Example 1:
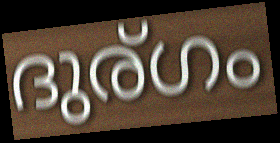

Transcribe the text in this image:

ദുര്ഗം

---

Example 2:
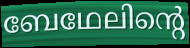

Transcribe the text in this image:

ബേഥേലിന്റെ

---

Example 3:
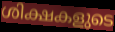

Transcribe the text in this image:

ശിക്ഷകളുടെ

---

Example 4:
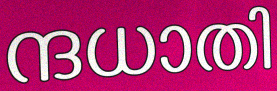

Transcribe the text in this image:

ന്ദധാതി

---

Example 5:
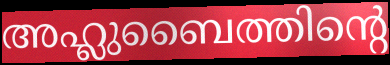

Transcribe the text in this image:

അഹ്ലുബൈത്തിന്റെ